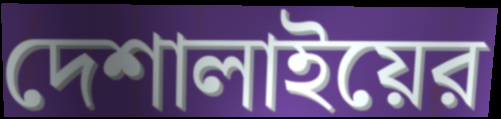
দেশালাইয়ের